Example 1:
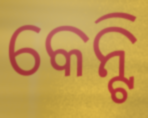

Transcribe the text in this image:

କେନ୍ଟି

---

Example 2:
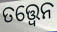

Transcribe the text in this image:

ତତ୍ତ୍ଵେନ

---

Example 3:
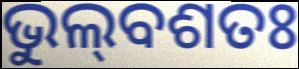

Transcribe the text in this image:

ଭୁଲ୍‌ବଶତଃ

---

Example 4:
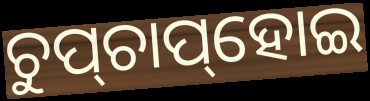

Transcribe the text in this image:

ଚୁପ୍‌ଚାପ୍‌ହୋଇ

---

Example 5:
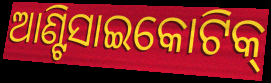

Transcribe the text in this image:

ଆଣ୍ଟିସାଇକୋଟିକ୍